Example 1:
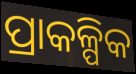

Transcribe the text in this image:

ପ୍ରାକଳ୍ପିକ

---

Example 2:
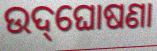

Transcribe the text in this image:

ଉଦ୍‌ଘୋଷଣା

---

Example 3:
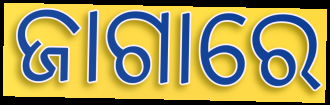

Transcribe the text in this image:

ଜାଗାରେ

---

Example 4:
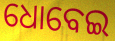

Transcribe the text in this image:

ଧୋବେଇ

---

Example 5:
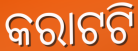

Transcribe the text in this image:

କରାଟଟି